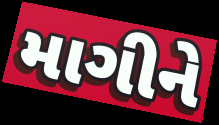
માગીને